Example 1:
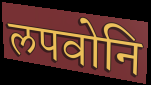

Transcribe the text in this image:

लपवोनि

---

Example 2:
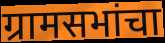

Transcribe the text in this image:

ग्रामसभांचा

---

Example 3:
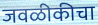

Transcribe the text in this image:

जवळीकीचा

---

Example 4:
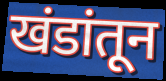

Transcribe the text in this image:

खंडांतून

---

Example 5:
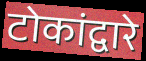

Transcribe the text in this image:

टोकांद्वारे